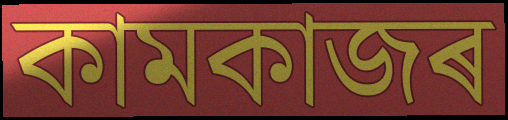
কামকাজৰ